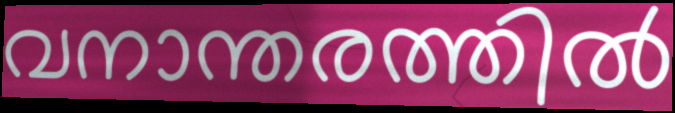
വനാന്തരത്തിൽ